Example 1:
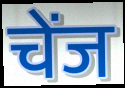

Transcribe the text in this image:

चेंज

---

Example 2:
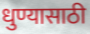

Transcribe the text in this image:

धुण्यासाठी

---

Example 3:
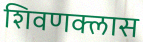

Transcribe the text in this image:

शिवणक्लास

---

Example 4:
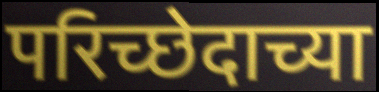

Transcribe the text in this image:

परिच्छेदाच्या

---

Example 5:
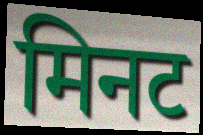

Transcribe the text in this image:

मिनट